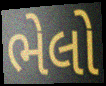
ભેલો